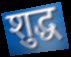
शुद्ध